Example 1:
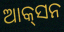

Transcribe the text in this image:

ଆକ୍‌ସନ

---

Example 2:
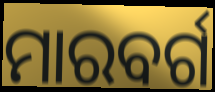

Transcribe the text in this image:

ମାରବର୍ଗ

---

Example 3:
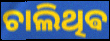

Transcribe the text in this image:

ଚାଲିଥିଵ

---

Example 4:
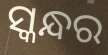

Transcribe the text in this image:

ସ୍କନ୍ଧର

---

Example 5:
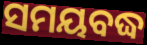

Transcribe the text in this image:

ସମୟବଦ୍ଧ